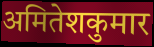
अमितेशकुमार